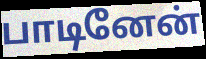
பாடினேன்